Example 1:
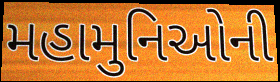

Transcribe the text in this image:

મહામુનિઓની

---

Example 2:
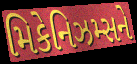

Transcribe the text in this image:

મિકેનિઝમ્સને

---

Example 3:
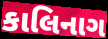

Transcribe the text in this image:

કાલિનાગ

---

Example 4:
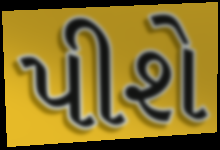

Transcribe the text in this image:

પીશે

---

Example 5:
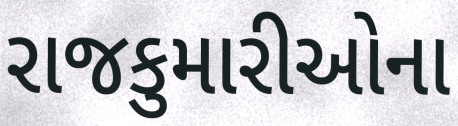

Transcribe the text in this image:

રાજકુમારીઓના